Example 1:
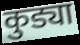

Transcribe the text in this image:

कुड्या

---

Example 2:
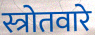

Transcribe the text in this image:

स्त्रोतवारे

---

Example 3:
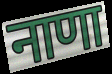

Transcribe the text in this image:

नाणा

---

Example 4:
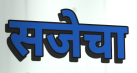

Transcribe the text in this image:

सजेचा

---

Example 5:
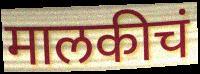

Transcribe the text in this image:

मालकीचं